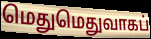
மெதுமெதுவாகப்